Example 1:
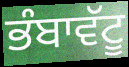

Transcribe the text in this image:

ਭੰਬਾਵੱਟੂ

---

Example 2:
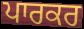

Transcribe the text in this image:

ਪਾਰਕਰ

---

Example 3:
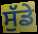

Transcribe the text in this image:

ਸੁੱਡੇ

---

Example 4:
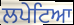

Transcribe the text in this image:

ਲਪੇਟਿਆ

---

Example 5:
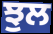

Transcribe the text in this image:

ਝੁਲ